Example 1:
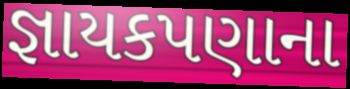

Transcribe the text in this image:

જ્ઞાયકપણાના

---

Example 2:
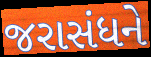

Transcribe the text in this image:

જરાસંધને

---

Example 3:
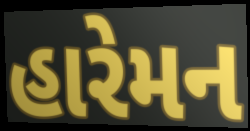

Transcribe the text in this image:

હારેમન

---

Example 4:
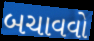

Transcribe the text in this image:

બચાવવો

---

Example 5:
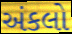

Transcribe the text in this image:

અંકલો